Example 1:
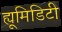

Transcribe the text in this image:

ह्यूमिडिटी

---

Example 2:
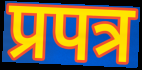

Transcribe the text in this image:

प्रपत्र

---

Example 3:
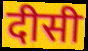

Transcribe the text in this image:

दीसी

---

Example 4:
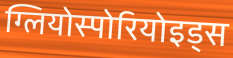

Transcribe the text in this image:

ग्लियोस्पोरियोइड्स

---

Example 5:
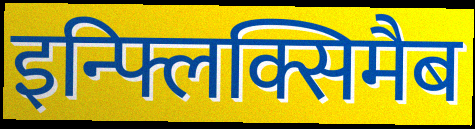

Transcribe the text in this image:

इन्फ्लिक्सिमैब